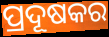
ପ୍ରଦୂଷକର